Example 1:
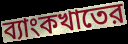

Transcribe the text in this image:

ব্যাংকখাতের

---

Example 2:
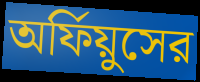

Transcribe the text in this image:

অর্ফিয়ুসের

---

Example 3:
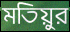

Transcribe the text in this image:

মতিয়ুর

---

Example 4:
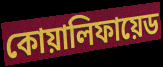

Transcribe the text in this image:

কোয়ালিফায়েড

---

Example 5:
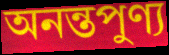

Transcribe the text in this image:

অনন্তপুণ্য